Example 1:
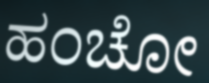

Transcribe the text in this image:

ಹಂಚೋ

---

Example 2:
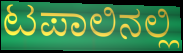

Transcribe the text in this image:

ಟಪಾಲಿನಲ್ಲಿ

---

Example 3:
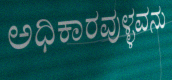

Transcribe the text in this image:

ಅಧಿಕಾರವುಳ್ಳವನು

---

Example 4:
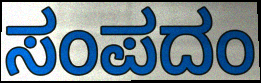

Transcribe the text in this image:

ಸಂಪದಂ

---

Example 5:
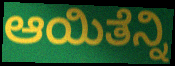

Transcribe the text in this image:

ಆಯಿತೆನ್ನಿ